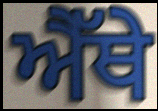
ਐੱਥੇ